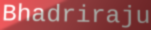
Bhadriraju